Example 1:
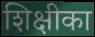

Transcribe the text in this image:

शिक्षीका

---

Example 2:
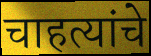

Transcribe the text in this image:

चाहत्यांचे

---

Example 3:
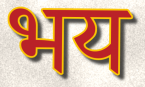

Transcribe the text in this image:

भय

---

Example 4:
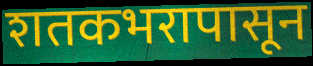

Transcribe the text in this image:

शतकभरापासून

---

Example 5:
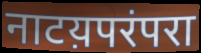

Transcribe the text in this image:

नाटय़परंपरा